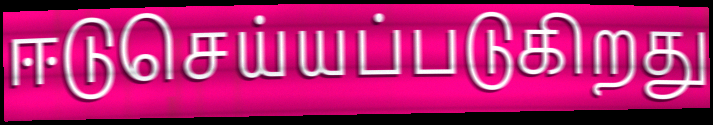
ஈடுசெய்யப்படுகிறது